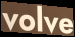
volve